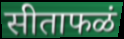
सीताफळं